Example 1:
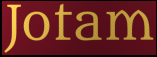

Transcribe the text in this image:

Jotam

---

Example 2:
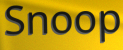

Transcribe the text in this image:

Snoop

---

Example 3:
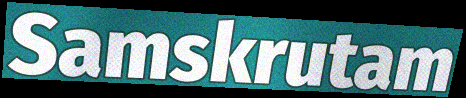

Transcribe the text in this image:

Samskrutam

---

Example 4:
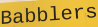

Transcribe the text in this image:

Babblers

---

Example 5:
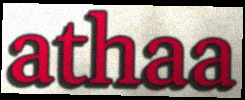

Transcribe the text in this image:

athaa